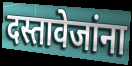
दस्तावेजांना